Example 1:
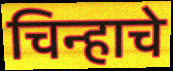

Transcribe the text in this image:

चिन्हाचे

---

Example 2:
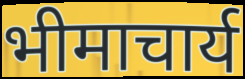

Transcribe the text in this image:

भीमाचार्य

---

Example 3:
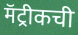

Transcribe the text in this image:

मॅट्रीकची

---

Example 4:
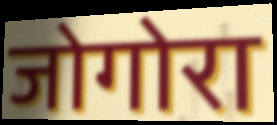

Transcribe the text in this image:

जोगोरा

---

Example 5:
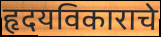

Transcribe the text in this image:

हृदयविकाराचे